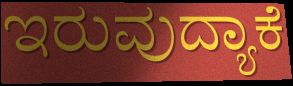
ಇರುವುದ್ಯಾಕೆ